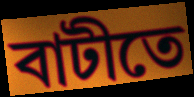
বাটীতে